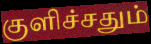
குளிச்சதும்